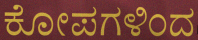
ಕೋಪಗಳಿಂದ